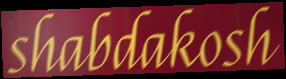
shabdakosh